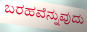
ಬರಹವೆನ್ನುವುದು